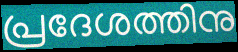
പ്രദേശത്തിനു